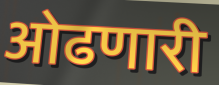
ओढणारी